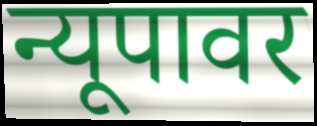
न्यूपावर